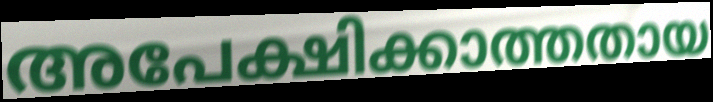
അപേക്ഷിക്കാത്തതായ